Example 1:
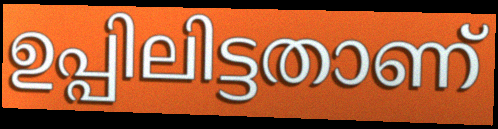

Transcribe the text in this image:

ഉപ്പിലിട്ടതാണ്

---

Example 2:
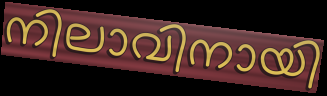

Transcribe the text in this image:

നിലാവിനായി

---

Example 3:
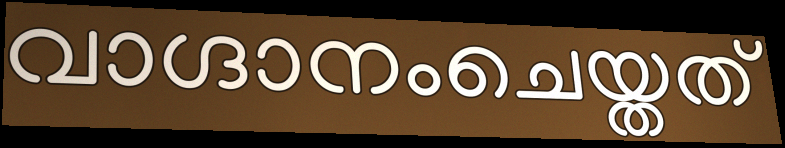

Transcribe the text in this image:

വാഗ്ദാനംചെയ്തത്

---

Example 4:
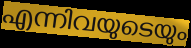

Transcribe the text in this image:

എന്നിവയുടെയും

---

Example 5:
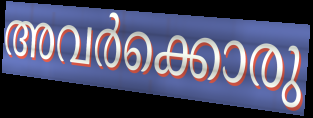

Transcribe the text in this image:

അവർക്കൊരു